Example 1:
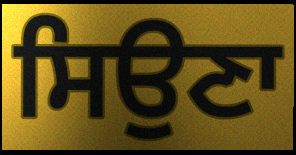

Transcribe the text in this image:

ਸਿਉਣਾ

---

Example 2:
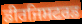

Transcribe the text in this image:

ਡੀਰਜਿਸਟਰਡ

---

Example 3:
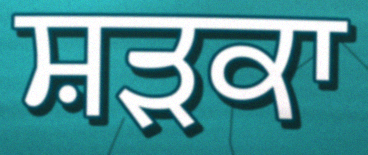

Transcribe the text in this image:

ਸ਼ੜਕਾ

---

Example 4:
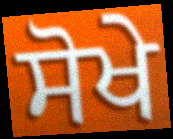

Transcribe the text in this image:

ਸੋਖੇ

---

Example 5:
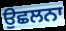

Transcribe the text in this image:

ਉਛਲਨਾ